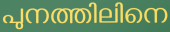
പുനത്തിലിനെ